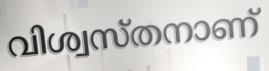
വിശ്വസ്തനാണ്